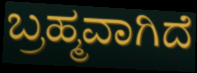
ಬ್ರಹ್ಮವಾಗಿದೆ